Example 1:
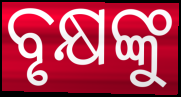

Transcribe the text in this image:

ବୃକ୍ଷଙ୍କୁ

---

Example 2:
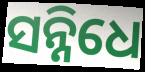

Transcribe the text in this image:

ସନ୍ନିଧେ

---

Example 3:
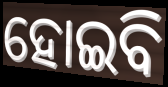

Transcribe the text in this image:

ହୋଇବି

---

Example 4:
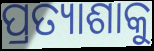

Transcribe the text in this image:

ପ୍ରତ୍ୟାଶାକୁ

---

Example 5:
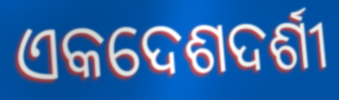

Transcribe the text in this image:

ଏକଦେଶଦର୍ଶୀ